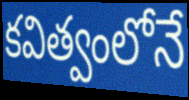
కవిత్వంలోనే